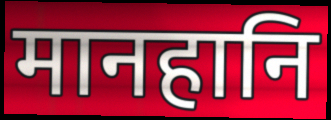
मानहानि